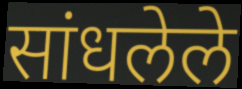
सांधलेले